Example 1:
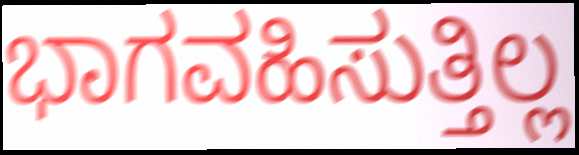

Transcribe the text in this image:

ಭಾಗವಹಿಸುತ್ತಿಲ್ಲ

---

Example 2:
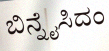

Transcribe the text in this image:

ಬಿನ್ನೈಸಿದಂ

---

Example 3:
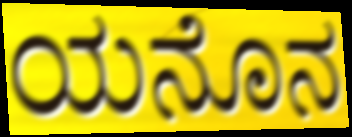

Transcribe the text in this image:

ಯನೊನ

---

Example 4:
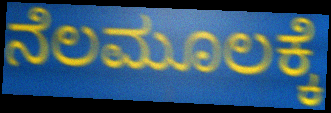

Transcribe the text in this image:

ನೆಲಮೂಲಕ್ಕೆ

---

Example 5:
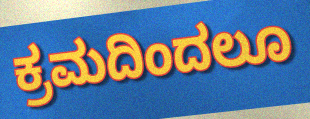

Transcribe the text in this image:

ಕ್ರಮದಿಂದಲೂ